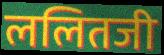
ललितजी